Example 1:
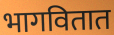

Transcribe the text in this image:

भागवितात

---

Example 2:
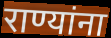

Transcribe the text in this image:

राण्यांना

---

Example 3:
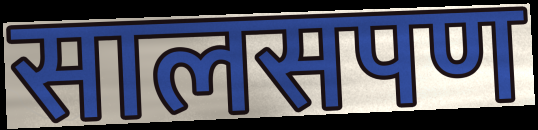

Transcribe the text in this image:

सालसपण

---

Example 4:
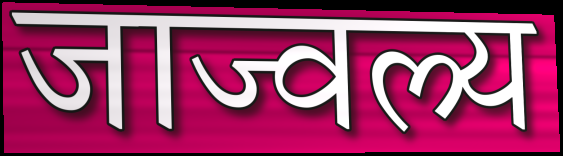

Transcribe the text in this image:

जाज्वल्य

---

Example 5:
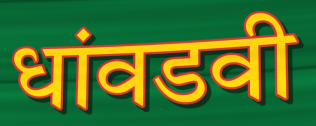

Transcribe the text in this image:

धांवडवी